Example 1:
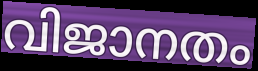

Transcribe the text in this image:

വിജാനതം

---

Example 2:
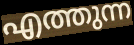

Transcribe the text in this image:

എത്തുന്ന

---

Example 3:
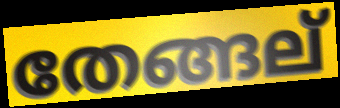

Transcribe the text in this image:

തേങ്ങല്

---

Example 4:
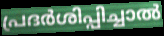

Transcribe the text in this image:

പ്രദർശിപ്പിച്ചാൽ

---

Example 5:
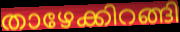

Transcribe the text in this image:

താഴേക്കിറങ്ങി